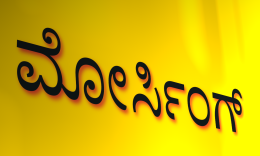
ಮೋರ್ಸಿಂಗ್